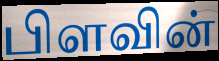
பிளவின்